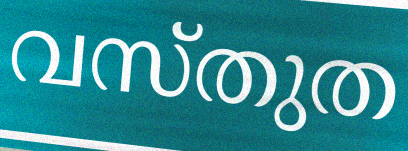
വസ്തുത